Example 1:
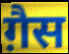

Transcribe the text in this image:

ग़ैस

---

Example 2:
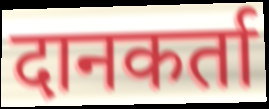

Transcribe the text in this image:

दानकर्ता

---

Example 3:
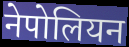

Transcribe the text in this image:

नेपोलियन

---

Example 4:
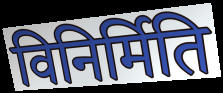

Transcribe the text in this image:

विनिर्मिति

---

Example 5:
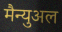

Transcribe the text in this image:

मैन्युअल